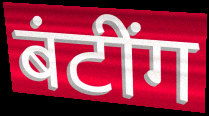
बंटींग